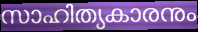
സാഹിത്യകാരനും